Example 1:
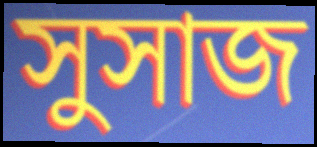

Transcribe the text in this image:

সুসাজ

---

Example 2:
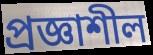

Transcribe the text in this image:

প্রজ্ঞাশীল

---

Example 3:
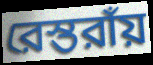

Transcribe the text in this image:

রেস্তরাঁয়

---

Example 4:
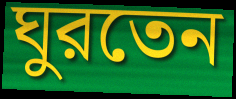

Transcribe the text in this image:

ঘুরতেন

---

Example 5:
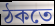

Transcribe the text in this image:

ঠকতে